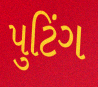
પુટિંગ